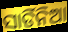
ସାର୍ଡିନିଆ